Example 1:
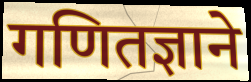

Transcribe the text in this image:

गणितज्ञाने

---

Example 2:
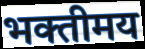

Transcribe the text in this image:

भक्तीमय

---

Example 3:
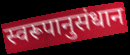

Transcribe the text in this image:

स्वरूपानुसंधान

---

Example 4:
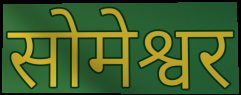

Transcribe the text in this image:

सोमेश्वर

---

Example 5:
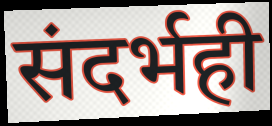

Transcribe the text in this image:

संदर्भही